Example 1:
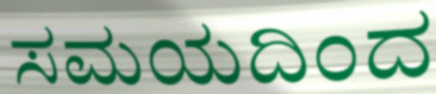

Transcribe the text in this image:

ಸಮಯದಿಂದ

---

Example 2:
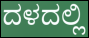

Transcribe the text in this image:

ದಳದಲ್ಲಿ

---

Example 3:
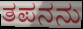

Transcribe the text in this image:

ತಪನನು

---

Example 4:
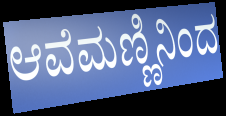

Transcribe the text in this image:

ಆವೆಮಣ್ಣಿನಿಂದ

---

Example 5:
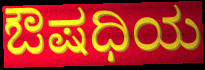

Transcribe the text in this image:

ಔಷಧಿಯ